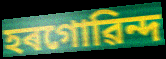
হৰগোৱিন্দ